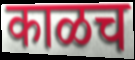
काळच